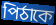
পিঠাকে